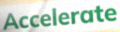
Accelerate